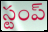
స్టంప్